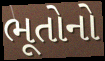
ભૂતોનો